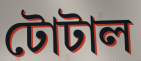
টোটাল